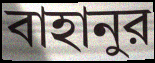
বাহানুর